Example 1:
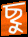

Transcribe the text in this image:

ছু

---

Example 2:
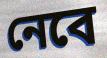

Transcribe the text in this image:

নেবে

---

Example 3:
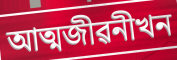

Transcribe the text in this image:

আত্মজীৱনীখন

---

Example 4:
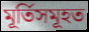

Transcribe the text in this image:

মূৰ্তিসমূহত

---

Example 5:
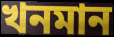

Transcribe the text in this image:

খনমান